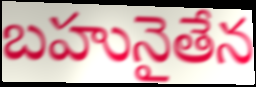
బహునైతేన